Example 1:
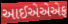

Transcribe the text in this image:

આઈએએએફ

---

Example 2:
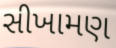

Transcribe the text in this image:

સીખામણ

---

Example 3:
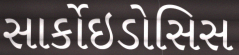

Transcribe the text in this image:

સાર્કોઇડોસિસ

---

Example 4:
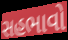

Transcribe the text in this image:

સહભાવો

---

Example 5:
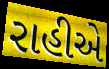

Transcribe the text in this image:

રાહીએ